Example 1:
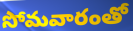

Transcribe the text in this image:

సోమవారంతో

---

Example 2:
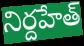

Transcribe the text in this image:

నిర్దహేత్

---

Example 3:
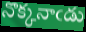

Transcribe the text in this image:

నొక్కనాఁడు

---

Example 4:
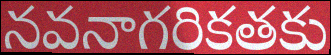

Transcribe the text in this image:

నవనాగరికతకు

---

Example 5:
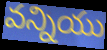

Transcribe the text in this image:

వన్నియు